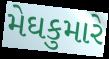
મેઘકુમારે